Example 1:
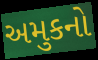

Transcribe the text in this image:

અમુકનો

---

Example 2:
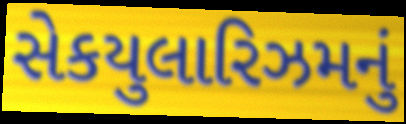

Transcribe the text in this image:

સેકયુલારિઝમનું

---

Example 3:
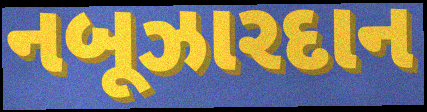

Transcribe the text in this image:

નબૂઝારદાન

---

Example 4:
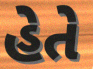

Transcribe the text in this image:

હેતે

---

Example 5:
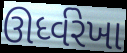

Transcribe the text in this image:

ઊર્ધ્વરેખા